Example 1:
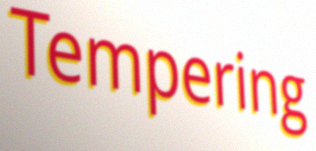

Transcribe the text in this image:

Tempering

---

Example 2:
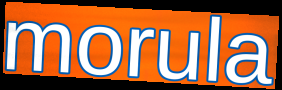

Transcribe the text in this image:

morula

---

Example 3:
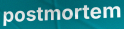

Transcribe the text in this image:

postmortem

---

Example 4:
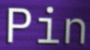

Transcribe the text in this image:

Pin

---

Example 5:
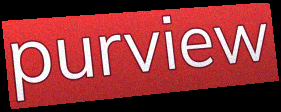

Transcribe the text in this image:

purview